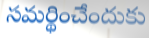
సమర్థించేందుకు